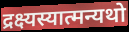
द्रक्ष्यस्यात्मन्यथो